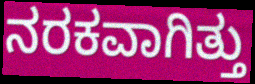
ನರಕವಾಗಿತ್ತು